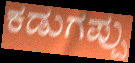
ಕಡುಗಪ್ಪು